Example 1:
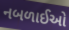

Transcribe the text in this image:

નબળાઈઓ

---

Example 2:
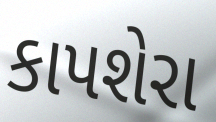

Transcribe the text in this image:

કાપશેરા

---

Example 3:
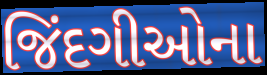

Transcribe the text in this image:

જિંદગીઓના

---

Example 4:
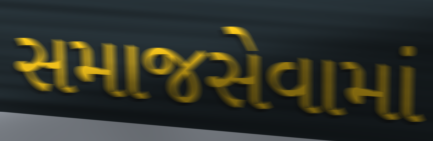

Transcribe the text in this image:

સમાજસેવામાં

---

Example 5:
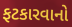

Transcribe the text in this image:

ફટકારવાનો